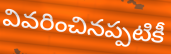
వివరించినప్పటికీ